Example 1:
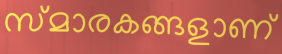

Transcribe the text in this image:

സ്മാരകങ്ങളാണ്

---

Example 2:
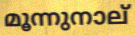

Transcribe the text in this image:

മൂന്നുനാല്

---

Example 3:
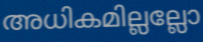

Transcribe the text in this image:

അധികമില്ലല്ലോ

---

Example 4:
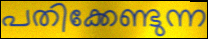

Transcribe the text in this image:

പതിക്കേണ്ടുന്ന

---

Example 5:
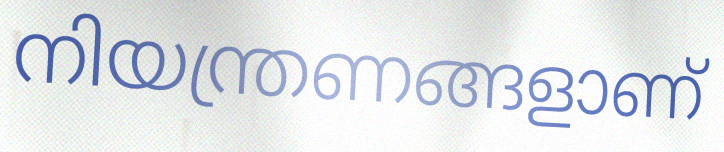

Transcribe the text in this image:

നിയന്ത്രണങ്ങളാണ്